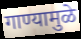
गाण्यामुळे